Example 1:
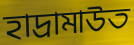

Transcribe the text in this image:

হাদ্রামাউত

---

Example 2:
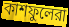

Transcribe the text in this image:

কাশফুলেরা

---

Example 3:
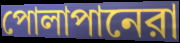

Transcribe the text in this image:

পোলাপানেরা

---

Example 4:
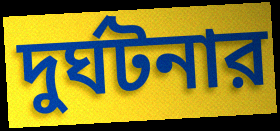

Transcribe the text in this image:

দুর্ঘটনার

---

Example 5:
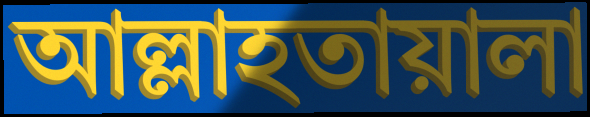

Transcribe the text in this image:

আল্লাহতায়ালা